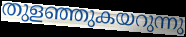
തുളഞ്ഞുകയറുന്നു